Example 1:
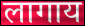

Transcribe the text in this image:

लागाय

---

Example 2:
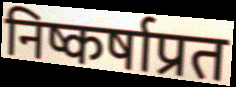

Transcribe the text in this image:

निष्कर्षाप्रत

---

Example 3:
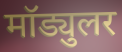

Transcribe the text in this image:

मॉड्युलर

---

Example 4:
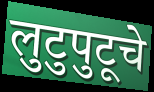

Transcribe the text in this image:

लुटुपुटूचे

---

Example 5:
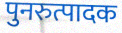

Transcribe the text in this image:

पुनरुत्पादक